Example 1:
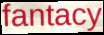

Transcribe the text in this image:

fantacy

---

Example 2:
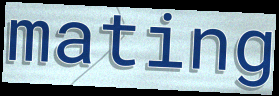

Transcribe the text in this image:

mating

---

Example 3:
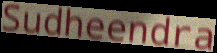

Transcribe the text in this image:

Sudheendra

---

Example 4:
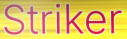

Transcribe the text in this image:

Striker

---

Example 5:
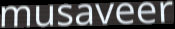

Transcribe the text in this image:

musaveer